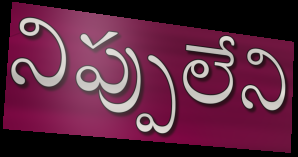
నిప్పులేని